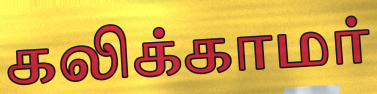
கலிக்காமர்